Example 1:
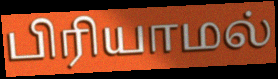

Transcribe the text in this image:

பிரியாமல்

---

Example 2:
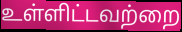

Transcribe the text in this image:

உள்ளிட்டவற்றை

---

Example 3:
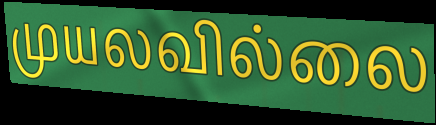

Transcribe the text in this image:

முயலவில்லை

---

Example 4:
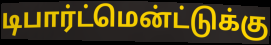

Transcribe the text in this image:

டிபார்ட்மென்ட்டுக்கு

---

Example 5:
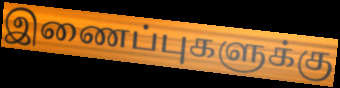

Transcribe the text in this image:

இணைப்புகளுக்கு